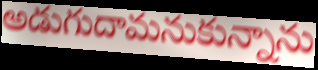
అడుగుదామనుకున్నాను